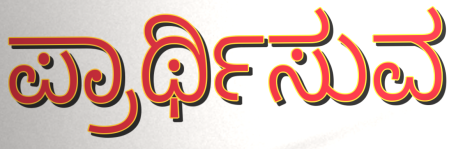
ಪ್ರಾರ್ಥಿಸುವ